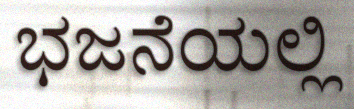
ಭಜನೆಯಲ್ಲಿ